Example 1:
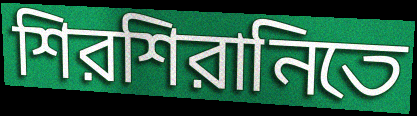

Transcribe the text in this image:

শিরশিরানিতে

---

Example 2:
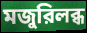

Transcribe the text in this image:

মজুরিলব্ধ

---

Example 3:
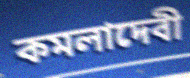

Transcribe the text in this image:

কমলাদেবী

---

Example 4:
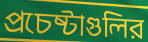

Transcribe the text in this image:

প্রচেষ্টাগুলির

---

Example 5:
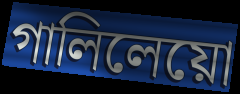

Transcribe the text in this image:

গালিলেয়ো